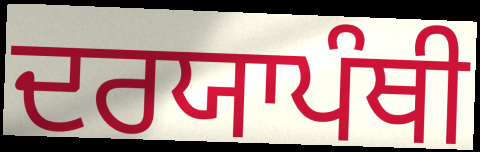
ਦਰਯਾਪੰਥੀ